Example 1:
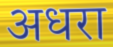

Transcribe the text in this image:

अधरा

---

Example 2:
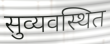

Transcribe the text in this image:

सुव्यवस्थित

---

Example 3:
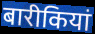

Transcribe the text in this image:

बारीकियां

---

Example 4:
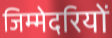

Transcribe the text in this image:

जिम्मेदरियों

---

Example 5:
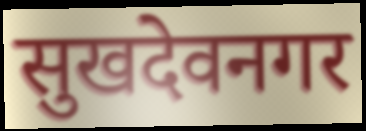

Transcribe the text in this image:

सुखदेवनगर